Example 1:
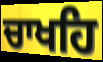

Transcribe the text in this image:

ਚਾਖਹਿ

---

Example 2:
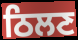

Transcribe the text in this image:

ਠਿਲਣ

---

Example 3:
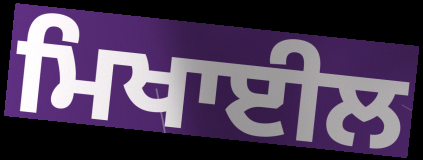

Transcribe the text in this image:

ਮਿਖਾਈਲ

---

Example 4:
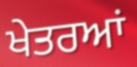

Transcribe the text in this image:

ਖੇਤਰਆਂ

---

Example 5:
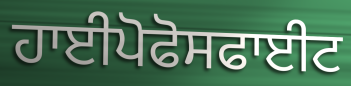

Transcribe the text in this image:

ਹਾਈਪੋਫੋਸਫਾਈਟ